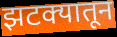
झटक्यातून